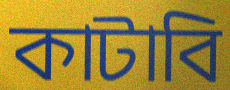
কাটাবি